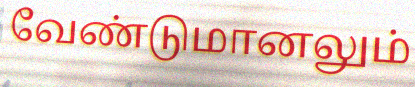
வேண்டுமானலும்